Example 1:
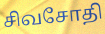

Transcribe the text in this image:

சிவசோதி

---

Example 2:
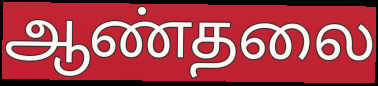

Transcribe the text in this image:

ஆண்தலை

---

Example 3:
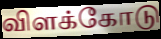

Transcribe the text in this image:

விளக்கோடு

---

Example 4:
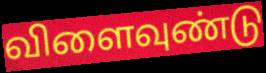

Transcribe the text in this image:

விளைவுண்டு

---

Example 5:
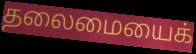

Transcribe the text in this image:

தலைமையைக்